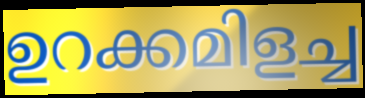
ഉറക്കമിളച്ച